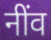
नींव